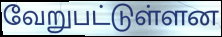
வேறுபட்டுள்ளன